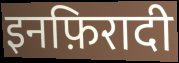
इनफ़िरादी